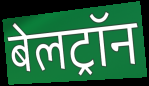
बेलट्रॉन